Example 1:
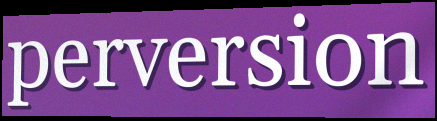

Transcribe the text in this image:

perversion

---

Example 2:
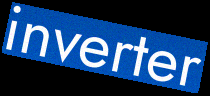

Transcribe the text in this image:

inverter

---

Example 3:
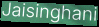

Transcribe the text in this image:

Jaisinghani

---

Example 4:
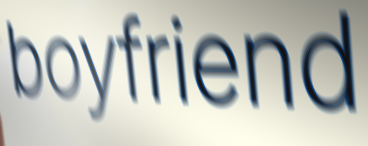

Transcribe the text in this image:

boyfriend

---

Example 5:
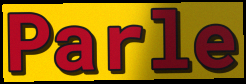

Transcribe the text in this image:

Parle